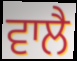
ਵਾਲੈ